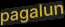
pagalun